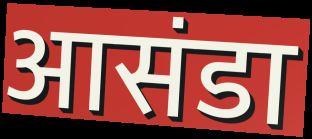
आसंडा